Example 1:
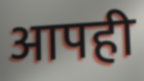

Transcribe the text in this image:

आपही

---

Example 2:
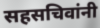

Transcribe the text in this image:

सहसचिवांनी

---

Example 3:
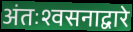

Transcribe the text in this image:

अंतःश्वसनाद्वारे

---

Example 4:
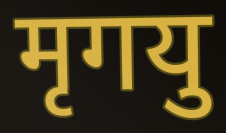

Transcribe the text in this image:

मृगयु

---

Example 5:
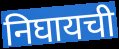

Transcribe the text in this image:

निघायची